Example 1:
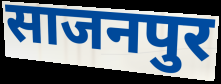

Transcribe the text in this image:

साजनपुर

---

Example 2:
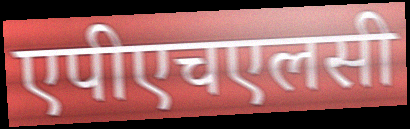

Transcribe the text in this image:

एपीएचएलसी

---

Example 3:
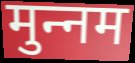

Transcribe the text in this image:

मुन्नम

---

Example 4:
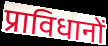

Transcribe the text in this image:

प्राविधानों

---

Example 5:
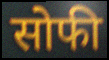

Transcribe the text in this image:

सोफी